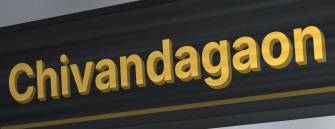
Chivandagaon